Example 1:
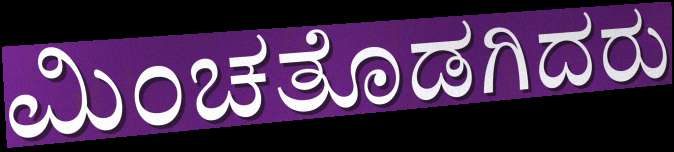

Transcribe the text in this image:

ಮಿಂಚತೊಡಗಿದರು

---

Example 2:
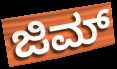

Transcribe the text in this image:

ಜಿಮ್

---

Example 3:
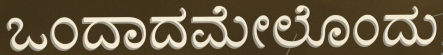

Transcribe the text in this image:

ಒಂದಾದಮೇಲೊಂದು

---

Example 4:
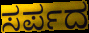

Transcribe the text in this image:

ಸರ್ಪದ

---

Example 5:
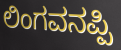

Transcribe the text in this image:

ಲಿಂಗವನಪ್ಪಿ